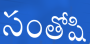
సంతోషి